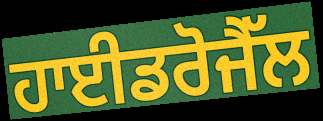
ਹਾਈਡਰੋਜੈੱਲ